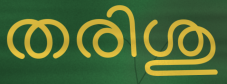
തരിശു